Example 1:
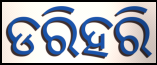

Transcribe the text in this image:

ଡରିହରି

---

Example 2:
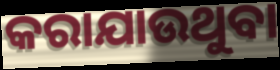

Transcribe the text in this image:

କରାଯାଉଥୁବା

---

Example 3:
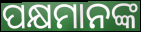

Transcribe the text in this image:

ପକ୍ଷମାନଙ୍କ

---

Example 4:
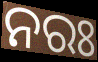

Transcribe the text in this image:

ନରଃ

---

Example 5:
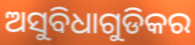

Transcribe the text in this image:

ଅସୁବିଧାଗୁଡିକର